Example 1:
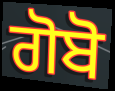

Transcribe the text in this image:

ਗੋਬੋ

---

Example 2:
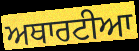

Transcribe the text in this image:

ਅਥਾਰਟੀਆ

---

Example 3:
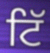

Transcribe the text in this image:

ਟਿੱ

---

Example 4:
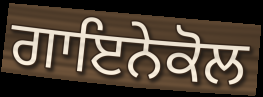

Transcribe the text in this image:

ਗਾਇਨੇਕੋਲ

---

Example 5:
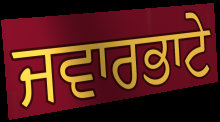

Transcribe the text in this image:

ਜਵਾਰਭਾਟੇ